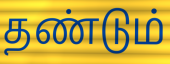
தண்டும்